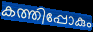
കത്തിപ്പോകും